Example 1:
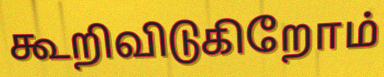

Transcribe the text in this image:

கூறிவிடுகிறோம்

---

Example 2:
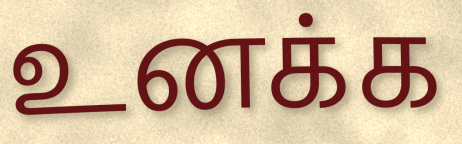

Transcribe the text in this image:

உனக்க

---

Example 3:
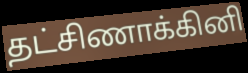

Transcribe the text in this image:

தட்சிணாக்கினி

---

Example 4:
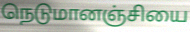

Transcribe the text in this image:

நெடுமானஞ்சியை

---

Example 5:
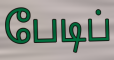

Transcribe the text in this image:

பேடிப்